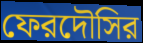
ফেরদৌসির